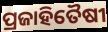
ପ୍ରଜାହିତୈଷୀ